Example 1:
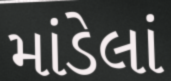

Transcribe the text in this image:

માંડેલાં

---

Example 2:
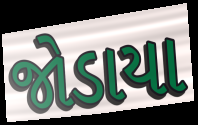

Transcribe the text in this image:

જોડાયા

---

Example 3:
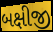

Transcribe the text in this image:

બક્ષીજી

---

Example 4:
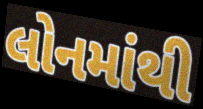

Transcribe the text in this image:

લોનમાંથી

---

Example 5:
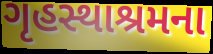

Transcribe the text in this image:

ગૃહસ્થાશ્રમના